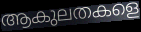
ആകുലതകളെ